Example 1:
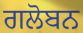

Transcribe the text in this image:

ਗਲੋਬਨ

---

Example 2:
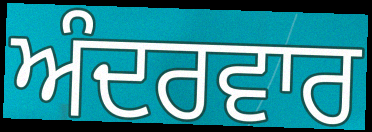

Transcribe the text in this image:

ਅੰਦਰਵਾਰ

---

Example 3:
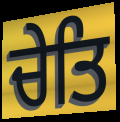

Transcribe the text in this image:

ਚੇਤਿ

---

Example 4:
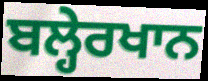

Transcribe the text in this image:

ਬਲ੍ਹੇਰਖਾਨ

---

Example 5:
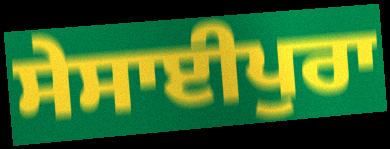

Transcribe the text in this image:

ਸੇਸਾਈਪੁਰਾ